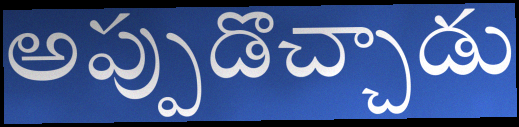
అప్పుడొచ్చాడు